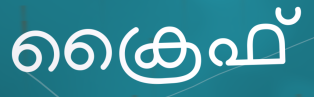
ക്രൈഫ്